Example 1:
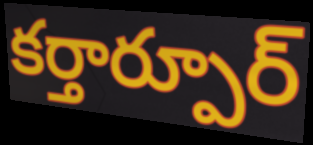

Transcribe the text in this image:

కర్తార్పూర్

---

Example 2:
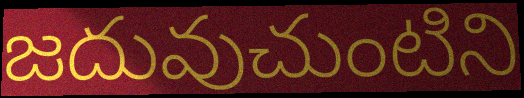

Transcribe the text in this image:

జదువుచుంటిని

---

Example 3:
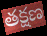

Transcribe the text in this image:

తక్షణ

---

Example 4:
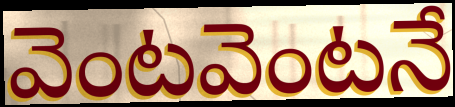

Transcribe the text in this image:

వెంటవెంటనే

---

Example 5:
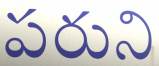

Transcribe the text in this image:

పరుని